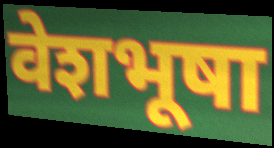
वेशभूषा